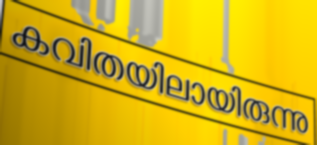
കവിതയിലായിരുന്നു